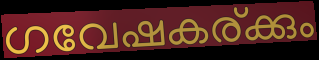
ഗവേഷകര്ക്കും